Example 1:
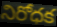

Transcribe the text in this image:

నిరోధక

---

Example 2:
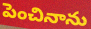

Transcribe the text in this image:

పెంచినాను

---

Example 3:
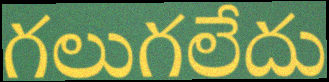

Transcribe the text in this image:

గలుగలేదు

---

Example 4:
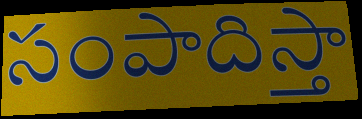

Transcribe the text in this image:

సంపాదిస్తా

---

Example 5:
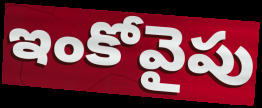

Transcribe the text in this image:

ఇంకోవైపు